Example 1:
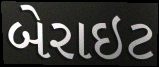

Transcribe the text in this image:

બેરાઇટ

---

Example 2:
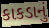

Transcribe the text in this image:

કાકડાનું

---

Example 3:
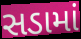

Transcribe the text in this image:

સડામાં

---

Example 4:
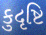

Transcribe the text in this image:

કુદૃષ્ટિ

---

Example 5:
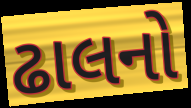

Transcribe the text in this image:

ઢાલનો